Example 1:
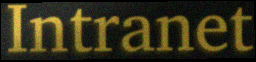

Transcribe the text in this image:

Intranet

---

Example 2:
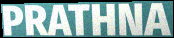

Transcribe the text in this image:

PRATHNA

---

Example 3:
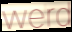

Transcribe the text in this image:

werd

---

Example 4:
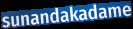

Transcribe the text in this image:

sunandakadame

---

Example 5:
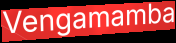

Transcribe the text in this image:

Vengamamba